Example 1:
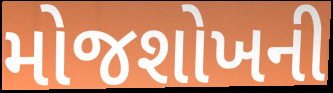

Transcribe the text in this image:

મોજશોખની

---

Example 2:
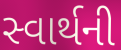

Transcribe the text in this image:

સ્વાર્થની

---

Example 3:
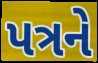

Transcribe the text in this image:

પત્રને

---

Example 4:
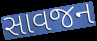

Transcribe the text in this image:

સાવજન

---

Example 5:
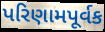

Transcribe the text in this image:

પરિણામપૂર્વક